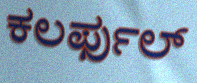
ಕಲರ್ಫುಲ್